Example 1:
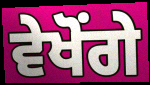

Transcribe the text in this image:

ਵੇਖੋਂਗੇ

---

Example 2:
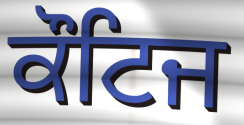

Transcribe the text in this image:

ਕੌਟਿਜ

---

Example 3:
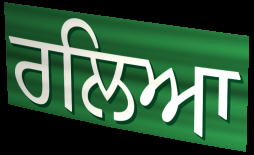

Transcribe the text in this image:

ਰਲਿਆ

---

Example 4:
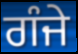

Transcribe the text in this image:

ਗੰਜੇ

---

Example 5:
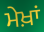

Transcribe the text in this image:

ਮੇਖ਼ਾਂ